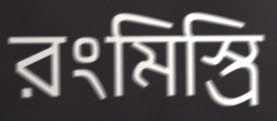
রংমিস্ত্রি